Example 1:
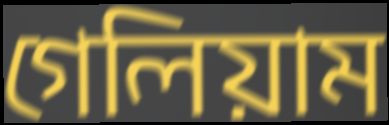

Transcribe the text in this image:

গেলিয়াম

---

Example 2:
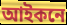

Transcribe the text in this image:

আইকনে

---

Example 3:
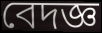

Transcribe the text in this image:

বেদজ্ঞ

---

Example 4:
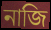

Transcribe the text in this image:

নাজি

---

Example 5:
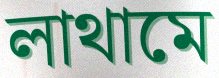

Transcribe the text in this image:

লাথামে